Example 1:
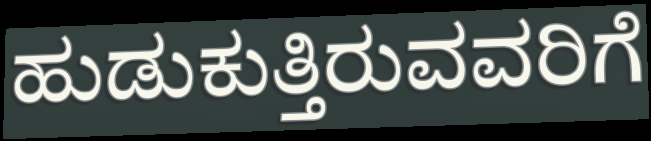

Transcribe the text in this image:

ಹುಡುಕುತ್ತಿರುವವರಿಗೆ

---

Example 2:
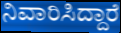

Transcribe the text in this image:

ನಿವಾರಿಸಿದ್ದಾರೆ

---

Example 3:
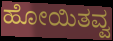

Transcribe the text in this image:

ಹೋಯಿತವ್ವ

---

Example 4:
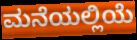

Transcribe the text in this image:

ಮನೆಯಲ್ಲಿಯೆ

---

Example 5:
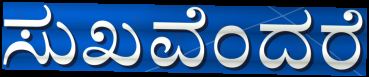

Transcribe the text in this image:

ಸುಖವೆಂದರೆ